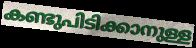
കണ്ടുപിടിക്കാനുള്ള